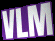
VLM